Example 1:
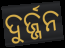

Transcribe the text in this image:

ଦୁର୍ଜ୍ଜନ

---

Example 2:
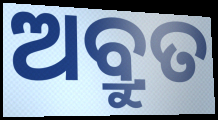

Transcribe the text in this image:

ଅବ୍ରୁତ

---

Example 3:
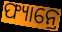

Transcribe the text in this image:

ଫ୍ୟାନ୍ରେ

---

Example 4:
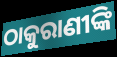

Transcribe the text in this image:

ଠାକୁରାଣୀଙ୍କି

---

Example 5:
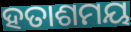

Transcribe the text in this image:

ହତାଶମୟ